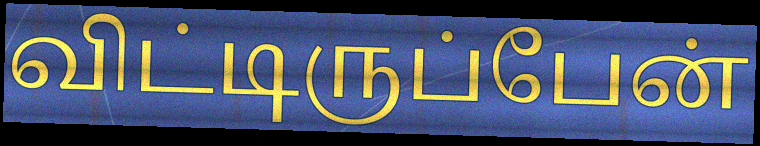
விட்டிருப்பேன்